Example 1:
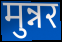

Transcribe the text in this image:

मुन्नर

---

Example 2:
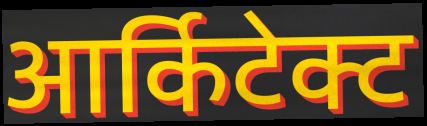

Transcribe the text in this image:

आर्किटेक्ट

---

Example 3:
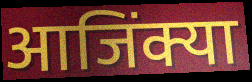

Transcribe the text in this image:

आजिंक्या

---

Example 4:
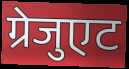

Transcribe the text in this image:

ग्रेजुएट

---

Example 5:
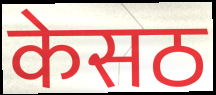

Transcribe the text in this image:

केसठ